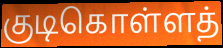
குடிகொள்ளத்